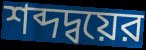
শব্দদ্বয়ের